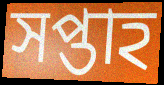
সপ্তাহ